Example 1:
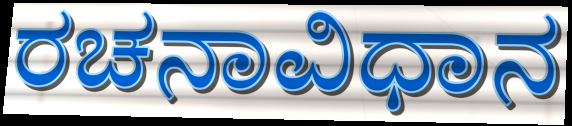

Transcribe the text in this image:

ರಚನಾವಿಧಾನ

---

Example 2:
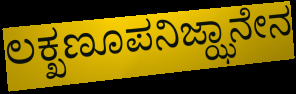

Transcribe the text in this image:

ಲಕ್ಖಣೂಪನಿಜ್ಝಾನೇನ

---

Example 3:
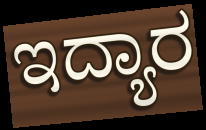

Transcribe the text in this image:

ಇದ್ಯಾರ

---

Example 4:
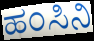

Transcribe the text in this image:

ಹಂಸಿನಿ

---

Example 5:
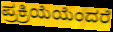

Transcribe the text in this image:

ಪ್ರಕ್ರಿಯೆಯೆಂದರೆ